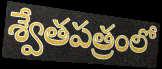
శ్వేతపత్రంలో